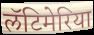
लॅटिमेरिया